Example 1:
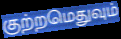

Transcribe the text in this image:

குற்றமெதுவும்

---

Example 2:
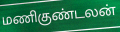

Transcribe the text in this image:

மணிகுண்டலன்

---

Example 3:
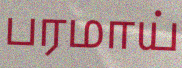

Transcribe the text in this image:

பரமாய்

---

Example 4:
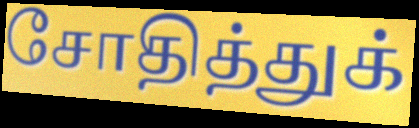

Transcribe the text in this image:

சோதித்துக்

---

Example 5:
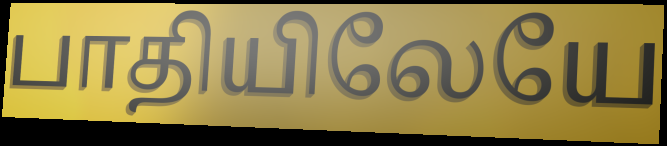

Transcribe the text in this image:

பாதியிலேயே